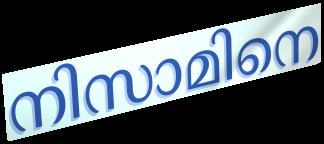
നിസാമിനെ